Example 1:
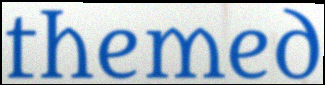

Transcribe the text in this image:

themed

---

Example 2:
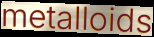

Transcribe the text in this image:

metalloids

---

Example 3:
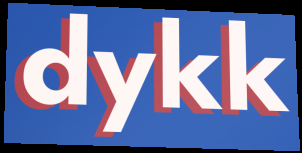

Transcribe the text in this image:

dykk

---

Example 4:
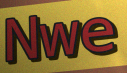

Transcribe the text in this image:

Nwe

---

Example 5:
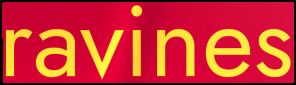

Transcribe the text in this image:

ravines